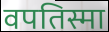
वपतिस्मा